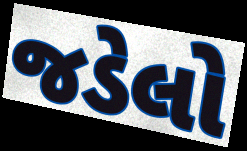
જડેલો